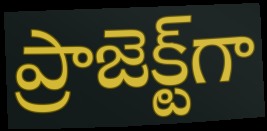
ప్రాజెక్ట్‌గా